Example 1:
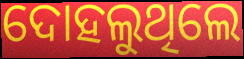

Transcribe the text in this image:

ଦୋହଲୁଥିଲେ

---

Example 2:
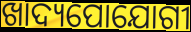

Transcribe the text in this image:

ଖାଦ୍ୟପୋଯୋଗୀ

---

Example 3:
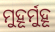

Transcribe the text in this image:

ମୁହୂର୍ମୁହୂ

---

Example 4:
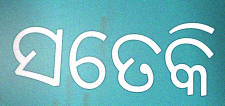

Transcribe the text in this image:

ସତେକି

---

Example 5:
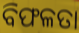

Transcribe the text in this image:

ବିଫଳତା